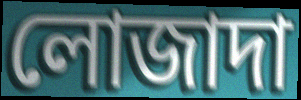
লোজাদা